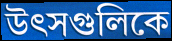
উৎসগুলিকে